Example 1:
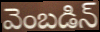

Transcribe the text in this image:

వెంబడిన్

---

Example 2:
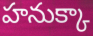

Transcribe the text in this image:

హనుక్కా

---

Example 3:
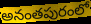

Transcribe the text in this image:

అనంతపురంలో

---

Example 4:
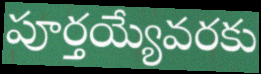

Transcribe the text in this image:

పూర్తయ్యేవరకు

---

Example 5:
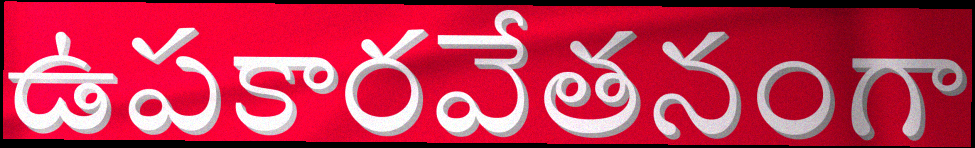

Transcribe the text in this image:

ఉపకారవేతనంగా